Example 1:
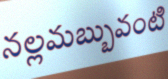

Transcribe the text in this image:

నల్లమబ్బువంటి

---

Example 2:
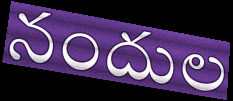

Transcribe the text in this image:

నందుల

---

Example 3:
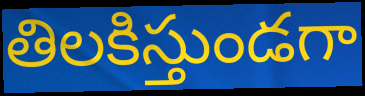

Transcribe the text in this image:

తిలకిస్తుండగా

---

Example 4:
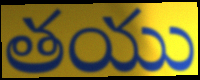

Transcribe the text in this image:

తయు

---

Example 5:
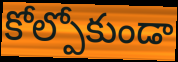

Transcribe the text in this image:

కోల్పోకుండా